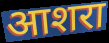
आशरा